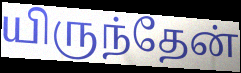
யிருந்தேன்